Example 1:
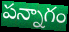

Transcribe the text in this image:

పన్నాగం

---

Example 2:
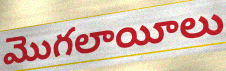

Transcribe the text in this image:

మొగలాయీలు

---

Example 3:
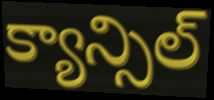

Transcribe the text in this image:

క్యాన్సిల్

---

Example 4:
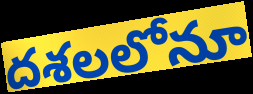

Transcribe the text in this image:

దశలలోనూ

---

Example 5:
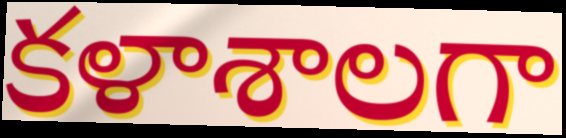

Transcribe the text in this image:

కళాశాలగా